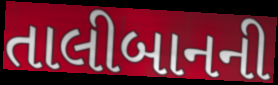
તાલીબાનની